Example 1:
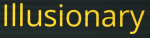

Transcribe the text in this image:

Illusionary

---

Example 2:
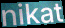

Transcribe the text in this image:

nikat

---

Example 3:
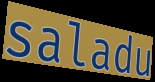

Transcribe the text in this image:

saladu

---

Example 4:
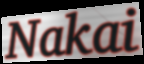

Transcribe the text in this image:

Nakai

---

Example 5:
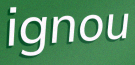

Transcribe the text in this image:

ignou